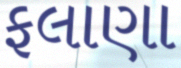
ફલાણા